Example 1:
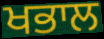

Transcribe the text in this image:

ਖਭਾਲ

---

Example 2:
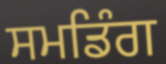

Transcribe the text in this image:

ਸਮਡਿੰਗ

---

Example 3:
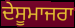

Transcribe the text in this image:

ਦੇਸੂਮਾਜਰਾ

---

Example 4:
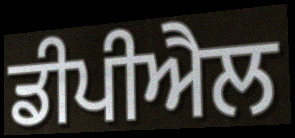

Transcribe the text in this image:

ਡੀਪੀਐਲ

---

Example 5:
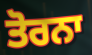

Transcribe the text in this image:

ਤੋਰਨਾ